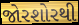
જોરશોરથી